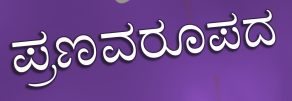
ಪ್ರಣವರೂಪದ